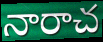
నారాచ